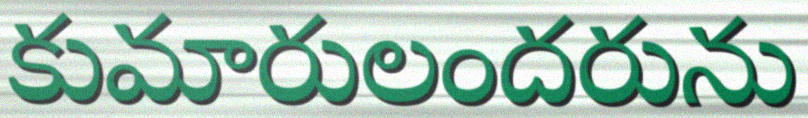
కుమారులందరును